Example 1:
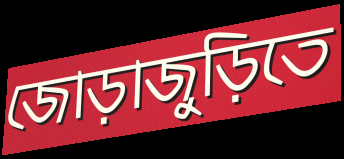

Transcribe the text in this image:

জোড়াজুড়িতে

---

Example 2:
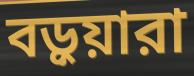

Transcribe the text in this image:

বড়ুয়ারা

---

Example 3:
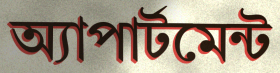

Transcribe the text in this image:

অ্যাপার্টমেন্ট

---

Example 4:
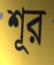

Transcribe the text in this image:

শূর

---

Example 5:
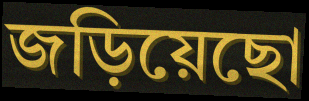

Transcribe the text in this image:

জড়িয়েছো